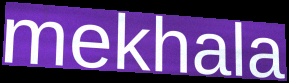
mekhala